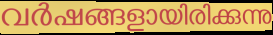
വർഷങ്ങളായിരിക്കുന്നു